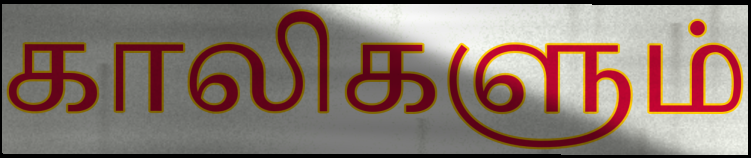
காலிகளும்